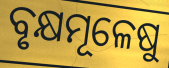
ବୃକ୍ଷମୂଳେଷୁ